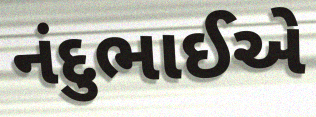
નંદુભાઈએ